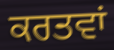
ਕਰਤਵਾਂ